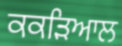
ਕਕੜਿਆਲ